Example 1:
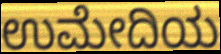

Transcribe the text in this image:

ಉಮೇದಿಯ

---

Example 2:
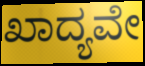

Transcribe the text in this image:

ಖಾದ್ಯವೇ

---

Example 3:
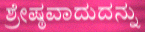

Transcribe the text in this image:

ಶ್ರೇಷ್ಠವಾದುದನ್ನು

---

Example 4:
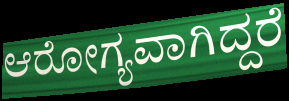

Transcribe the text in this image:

ಆರೋಗ್ಯವಾಗಿದ್ದರೆ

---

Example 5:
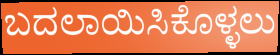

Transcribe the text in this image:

ಬದಲಾಯಿಸಿಕೊಳ್ಳಲು